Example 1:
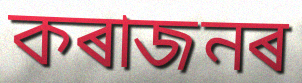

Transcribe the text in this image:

কৰাজনৰ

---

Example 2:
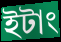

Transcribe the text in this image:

ইটাং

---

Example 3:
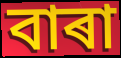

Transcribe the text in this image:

বাৰা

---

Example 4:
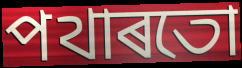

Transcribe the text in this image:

পথাৰতো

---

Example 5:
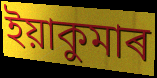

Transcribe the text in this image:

ইয়াকুমাৰ